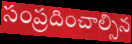
సంప్రదించాల్సిన